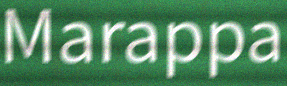
Marappa